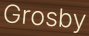
Grosby